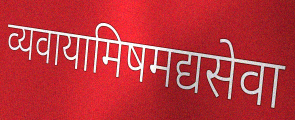
व्यवायामिषमद्यसेवा